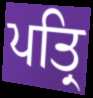
ਪਤ੍ਰਿ